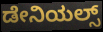
ಡೇನಿಯಲ್ಸ್